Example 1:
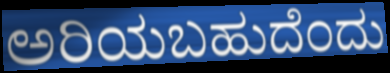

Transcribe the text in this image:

ಅರಿಯಬಹುದೆಂದು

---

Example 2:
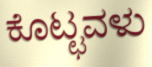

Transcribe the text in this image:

ಕೊಟ್ಟವಳು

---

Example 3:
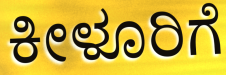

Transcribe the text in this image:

ಕೀಳೂರಿಗೆ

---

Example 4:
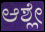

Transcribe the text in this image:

ಆಶ್ಲೇ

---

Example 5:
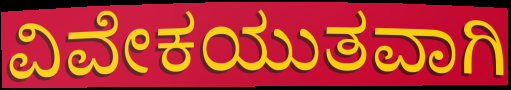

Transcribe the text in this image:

ವಿವೇಕಯುತವಾಗಿ